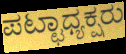
ಪಟ್ಟಾಧ್ಯಕ್ಷರು